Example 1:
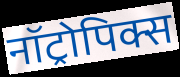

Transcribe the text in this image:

नॉट्रोपिक्स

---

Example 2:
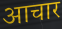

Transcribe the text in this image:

आचार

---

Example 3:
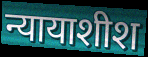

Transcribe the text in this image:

न्यायाशीश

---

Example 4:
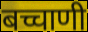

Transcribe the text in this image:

बच्चाणी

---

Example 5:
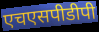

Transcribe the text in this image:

एचएसपीडीपी